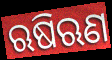
ଋଷିଋଣ